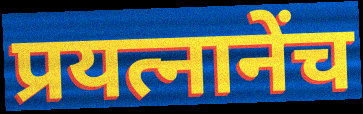
प्रयत्नानेंच